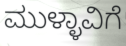
ಮುಳ್ಳಾವಿಗೆ